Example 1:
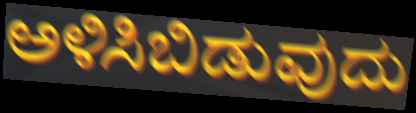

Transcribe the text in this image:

ಅಳಿಸಿಬಿಡುವುದು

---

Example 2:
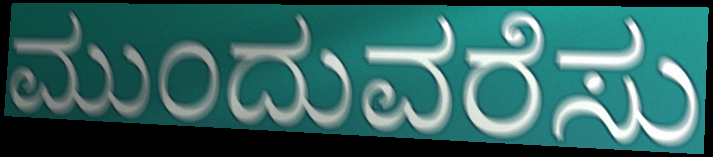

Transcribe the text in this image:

ಮುಂದುವರೆಸು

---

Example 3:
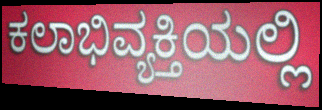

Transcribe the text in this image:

ಕಲಾಭಿವ್ಯಕ್ತಿಯಲ್ಲಿ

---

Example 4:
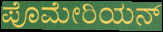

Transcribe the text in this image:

ಪೊಮೇರಿಯನ್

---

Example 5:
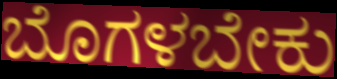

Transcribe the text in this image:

ಬೊಗಳಬೇಕು